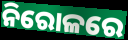
ନିରୋଳରେ